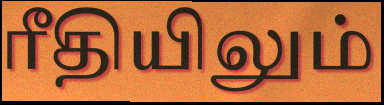
ரீதியிலும்